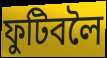
ফুটিবলৈ